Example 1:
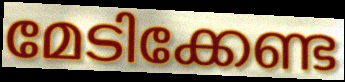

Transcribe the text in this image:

മേടിക്കേണ്ട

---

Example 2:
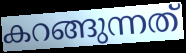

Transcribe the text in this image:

കറങ്ങുന്നത്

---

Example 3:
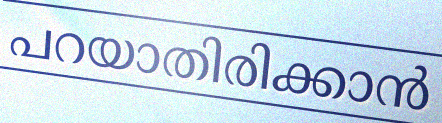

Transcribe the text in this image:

പറയാതിരിക്കാൻ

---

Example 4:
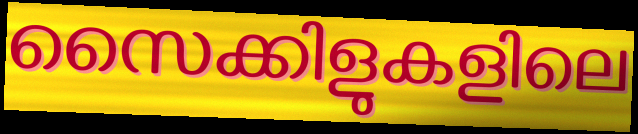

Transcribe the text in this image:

സൈക്കിളുകളിലെ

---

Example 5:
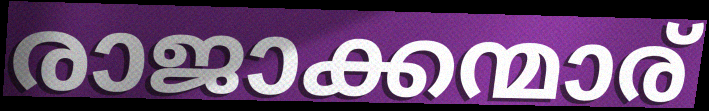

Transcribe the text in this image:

രാജാക്കന്മാര്